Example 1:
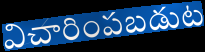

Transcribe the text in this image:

విచారింపబడుట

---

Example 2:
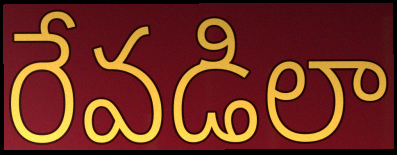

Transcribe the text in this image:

రేవడిలా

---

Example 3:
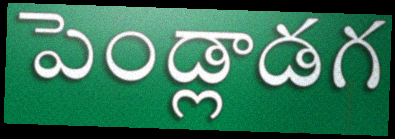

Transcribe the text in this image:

పెండ్లాడగ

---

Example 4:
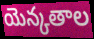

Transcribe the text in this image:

యెన్కతాల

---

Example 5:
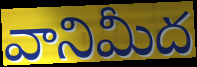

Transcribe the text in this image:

వానిమీద